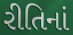
રીતિનાં